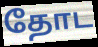
தோட